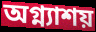
অগ্ন্যাশয়